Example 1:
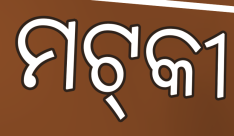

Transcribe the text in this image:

ମଟ୍‌କୀ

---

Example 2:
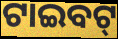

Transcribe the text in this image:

ଟାଇବଟ୍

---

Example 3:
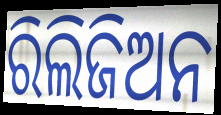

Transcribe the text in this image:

ରିଲିଜିଅନ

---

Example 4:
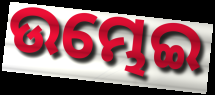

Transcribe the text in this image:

ଉମ୍ଭେଇ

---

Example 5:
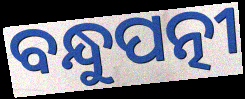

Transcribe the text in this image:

ବନ୍ଧୁପତ୍ନୀ